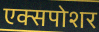
एक्सपोशर